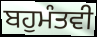
ਬਹੁਮੰਤਵੀ